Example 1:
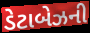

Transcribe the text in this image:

ડેટાબેઝની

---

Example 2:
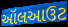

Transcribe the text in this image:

ઑલઆઉટ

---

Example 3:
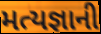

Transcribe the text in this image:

મત્યજ્ઞાની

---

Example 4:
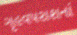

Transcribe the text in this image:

ગૃહવપરાશનાં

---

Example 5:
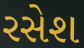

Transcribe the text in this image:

રસેશ